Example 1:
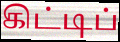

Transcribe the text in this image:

கிட்டிப்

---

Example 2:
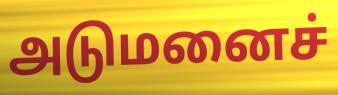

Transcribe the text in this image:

அடுமனைச்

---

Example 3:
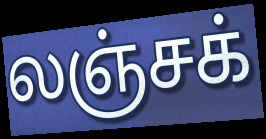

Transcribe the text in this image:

லஞ்சக்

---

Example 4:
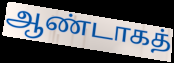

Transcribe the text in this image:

ஆண்டாகத்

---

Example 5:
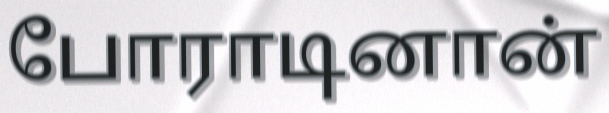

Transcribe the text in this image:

போராடினான்